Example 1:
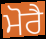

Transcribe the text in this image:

ਮੋਰੈ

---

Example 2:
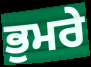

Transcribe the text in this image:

ਭੁਮਰੇ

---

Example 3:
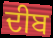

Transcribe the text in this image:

ਦੀਬ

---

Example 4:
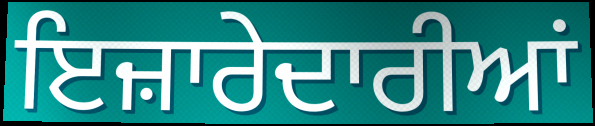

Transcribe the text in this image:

ਇਜ਼ਾਰੇਦਾਰੀਆਂ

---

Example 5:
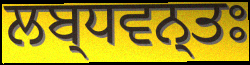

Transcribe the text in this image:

ਲਬ੍ਧਵਨ੍ਤਃ